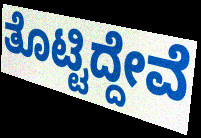
ತೊಟ್ಟಿದ್ದೇವೆ